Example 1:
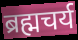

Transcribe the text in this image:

ब्रह्मचर्य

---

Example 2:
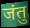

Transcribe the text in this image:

जंतु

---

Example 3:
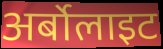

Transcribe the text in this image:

अर्बोलाइट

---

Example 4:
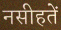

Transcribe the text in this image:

नसीहतें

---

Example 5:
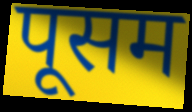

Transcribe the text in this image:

पूसम